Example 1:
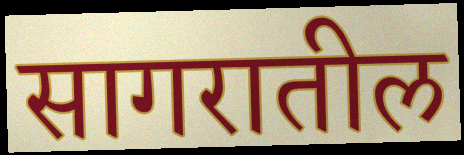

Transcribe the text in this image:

सागरातील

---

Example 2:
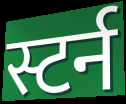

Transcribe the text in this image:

स्टर्न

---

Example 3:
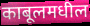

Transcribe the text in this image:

काबूलमधील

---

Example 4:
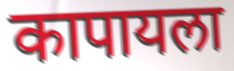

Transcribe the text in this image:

कापायला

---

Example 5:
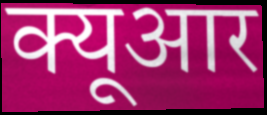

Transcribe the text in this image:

क्यूआर